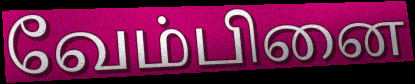
வேம்பினை